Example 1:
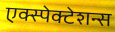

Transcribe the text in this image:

एक्स्पेक्टेशन्स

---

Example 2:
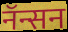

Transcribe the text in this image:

नॅन्सन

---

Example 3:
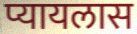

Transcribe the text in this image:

प्यायलास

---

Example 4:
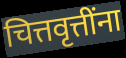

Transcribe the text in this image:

चित्तवृत्तींना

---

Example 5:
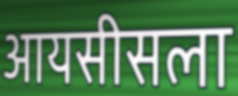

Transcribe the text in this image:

आयसीसला